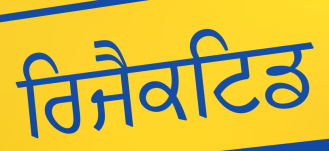
ਰਿਜੈਕਟਿਡ